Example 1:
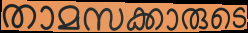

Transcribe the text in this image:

താമസക്കാരുടെ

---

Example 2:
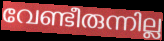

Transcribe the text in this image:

വേണ്ടീരുന്നില്ല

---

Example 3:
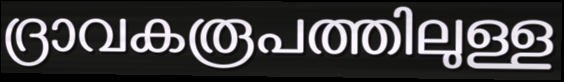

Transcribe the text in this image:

ദ്രാവകരൂപത്തിലുള്ള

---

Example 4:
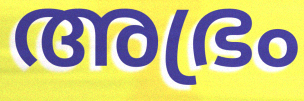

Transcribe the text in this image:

അഭ്രം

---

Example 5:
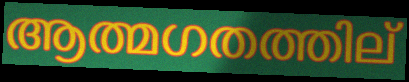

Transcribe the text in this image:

ആത്മഗതത്തില്